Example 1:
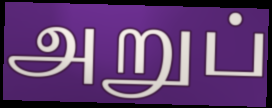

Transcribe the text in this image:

அறுப்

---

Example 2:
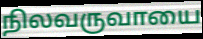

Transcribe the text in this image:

நிலவருவாயை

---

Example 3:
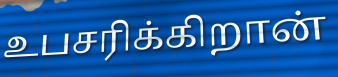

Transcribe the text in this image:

உபசரிக்கிறான்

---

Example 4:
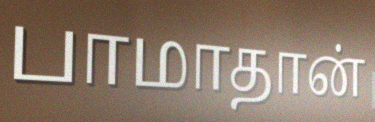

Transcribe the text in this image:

பாமாதான்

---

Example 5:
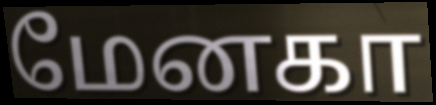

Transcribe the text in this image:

மேனகா